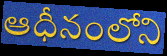
ఆధీనంలోని